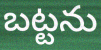
బట్టను